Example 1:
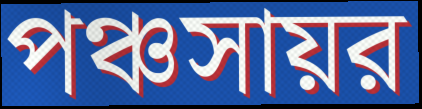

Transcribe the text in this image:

পঞ্চসায়র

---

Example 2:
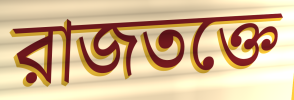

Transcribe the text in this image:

রাজতক্তে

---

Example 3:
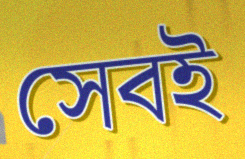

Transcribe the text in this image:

সেবই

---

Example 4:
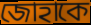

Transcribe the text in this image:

জোহাকে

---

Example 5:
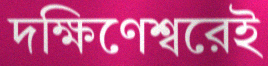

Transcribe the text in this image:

দক্ষিণেশ্বরেই